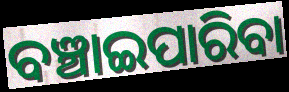
ବଞ୍ଚାଇପାରିବା